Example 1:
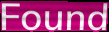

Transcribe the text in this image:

Found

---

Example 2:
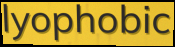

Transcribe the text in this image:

lyophobic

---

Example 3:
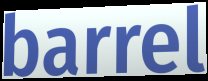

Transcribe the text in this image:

barrel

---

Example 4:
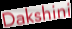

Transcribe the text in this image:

Dakshini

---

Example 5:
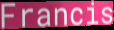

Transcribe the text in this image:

Francis